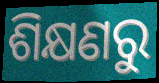
ଶିକ୍ଷଣରୁ